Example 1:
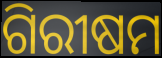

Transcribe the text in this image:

ଗିରୀଷମ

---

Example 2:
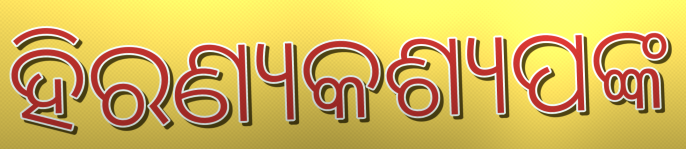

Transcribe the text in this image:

ହିରଣ୍ୟକଶ୍ୟପଙ୍କ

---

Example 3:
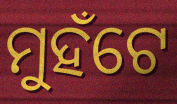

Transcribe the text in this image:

ମୁହଁଟେ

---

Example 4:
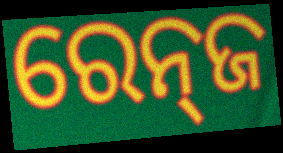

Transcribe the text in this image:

ରେନ୍‍ଜ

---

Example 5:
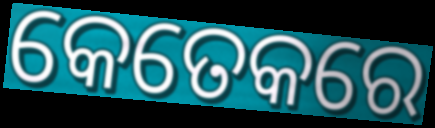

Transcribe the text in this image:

କେତେକରେ